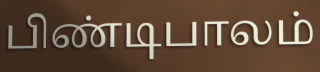
பிண்டிபாலம்